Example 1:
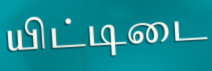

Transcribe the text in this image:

யிட்டிடை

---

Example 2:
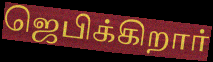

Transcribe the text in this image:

ஜெபிக்கிறார்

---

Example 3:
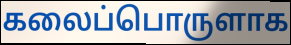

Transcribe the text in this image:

கலைப்பொருளாக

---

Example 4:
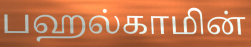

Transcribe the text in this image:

பஹல்காமின்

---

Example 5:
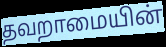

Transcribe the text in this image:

தவறாமையின்